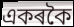
একৰকৈ